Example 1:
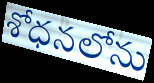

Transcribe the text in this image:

శోధనలోను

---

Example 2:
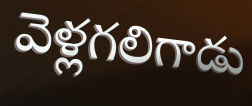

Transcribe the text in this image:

వెళ్లగలిగాడు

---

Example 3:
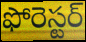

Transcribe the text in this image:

ఫోరెస్టర్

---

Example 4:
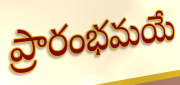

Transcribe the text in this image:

ప్రారంభమయే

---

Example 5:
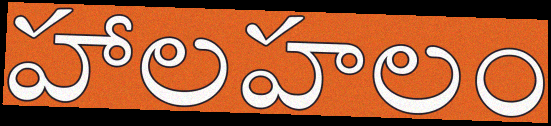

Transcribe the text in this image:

హాలహలం